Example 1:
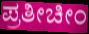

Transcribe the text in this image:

ಪ್ರತೀಚೀಂ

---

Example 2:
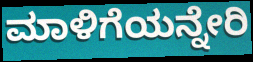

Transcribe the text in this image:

ಮಾಳಿಗೆಯನ್ನೇರಿ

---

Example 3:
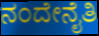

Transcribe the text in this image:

ನಂದೇನೈತಿ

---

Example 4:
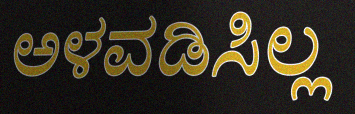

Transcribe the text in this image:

ಅಳವಡಿಸಿಲ್ಲ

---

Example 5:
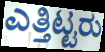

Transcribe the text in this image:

ಎತ್ತಿಟ್ಟರು